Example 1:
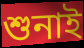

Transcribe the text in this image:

শুনাই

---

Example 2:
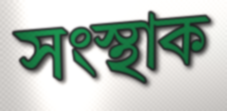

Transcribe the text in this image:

সংস্থাক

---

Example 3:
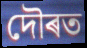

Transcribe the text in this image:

দৌৰত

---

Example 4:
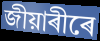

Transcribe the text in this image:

জীয়াৰীৰে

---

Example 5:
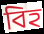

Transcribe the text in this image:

বিহ